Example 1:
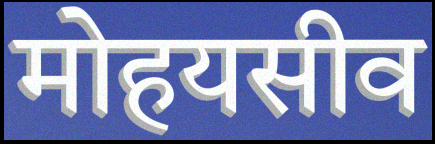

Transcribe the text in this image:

मोहयसीव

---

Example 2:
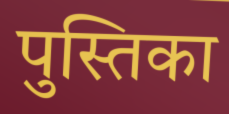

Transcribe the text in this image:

पुस्तिका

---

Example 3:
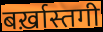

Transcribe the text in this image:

बर्ख़ास्तगी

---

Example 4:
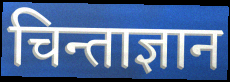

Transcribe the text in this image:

चिन्ताज्ञान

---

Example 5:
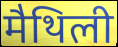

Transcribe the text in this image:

मैथिली